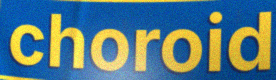
choroid